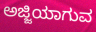
ಅಜ್ಜಿಯಾಗುವ